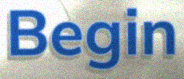
Begin